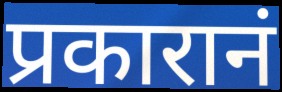
प्रकारानं